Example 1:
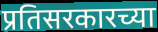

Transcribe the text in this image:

प्रतिसरकारच्या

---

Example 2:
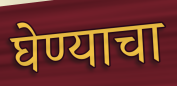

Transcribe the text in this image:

घेण्याचा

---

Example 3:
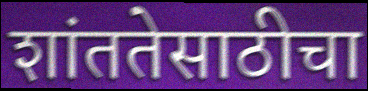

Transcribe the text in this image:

शांततेसाठीचा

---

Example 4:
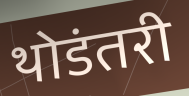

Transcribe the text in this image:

थोडंतरी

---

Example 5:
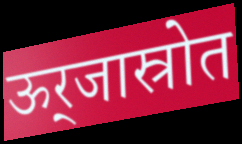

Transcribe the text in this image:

ऊर्जास्रोत